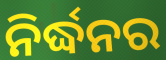
ନିର୍ଦ୍ଧନର